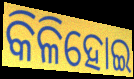
କିଳିହୋଇ